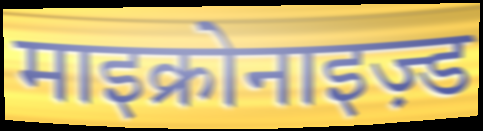
माइक्रोनाइज़्ड